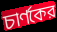
চার্ণকের